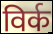
विर्क